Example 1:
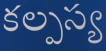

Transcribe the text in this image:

కల్పస్య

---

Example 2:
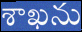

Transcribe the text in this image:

శాఖను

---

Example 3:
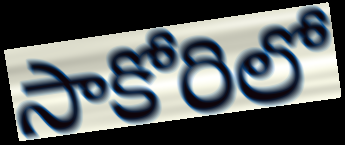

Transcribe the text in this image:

సాకోరిలో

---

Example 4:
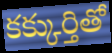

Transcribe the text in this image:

కక్కుర్తితో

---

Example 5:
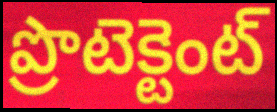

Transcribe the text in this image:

ప్రొటెక్టెంట్